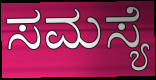
ಸಮಸ್ಯೆ